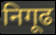
निगूढ